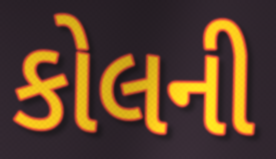
કોલની